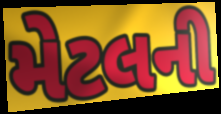
મેટલની